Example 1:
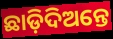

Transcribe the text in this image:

ଛାଡ଼ିଦିଅନ୍ତେ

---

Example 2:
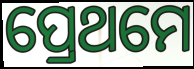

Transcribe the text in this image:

ପ୍ରେଥମେ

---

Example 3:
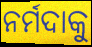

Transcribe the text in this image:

ନର୍ମଦାକୁ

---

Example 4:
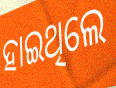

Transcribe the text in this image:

ହାଇଥିଲେ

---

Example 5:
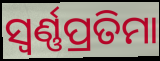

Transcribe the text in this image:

ସ୍ୱର୍ଣ୍ଣପ୍ରତିମା